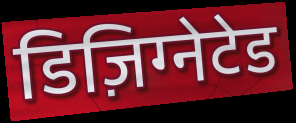
डिज़िग्नेटेड